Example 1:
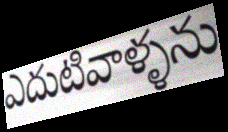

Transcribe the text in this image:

ఎదుటివాళ్ళను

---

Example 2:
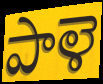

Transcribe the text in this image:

పాళె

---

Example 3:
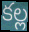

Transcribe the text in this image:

కల్ల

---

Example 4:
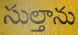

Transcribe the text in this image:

సుల్తాను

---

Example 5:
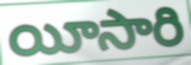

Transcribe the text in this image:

యీసారి